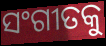
ସଂଗୀତକୁ